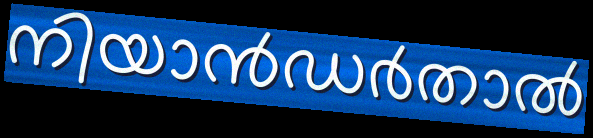
നിയാൻഡർതാൽ